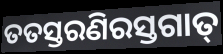
ତତସ୍ତରଣିରସ୍ତଗାତ୍